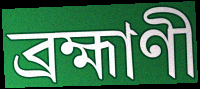
ব্রহ্মাণী